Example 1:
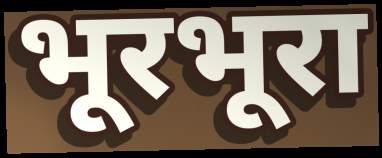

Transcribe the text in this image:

भूरभूरा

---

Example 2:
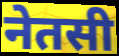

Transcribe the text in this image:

नेतसी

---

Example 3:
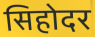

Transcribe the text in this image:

सिहोदर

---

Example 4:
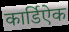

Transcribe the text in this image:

कार्डिऐक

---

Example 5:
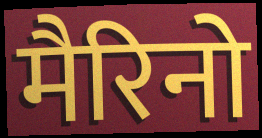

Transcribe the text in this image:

मैरिनो